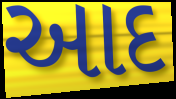
આદ